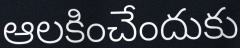
ఆలకించేందుకు